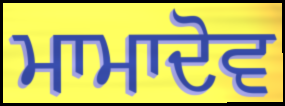
ਮਾਮਾਦੋਵ